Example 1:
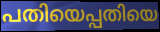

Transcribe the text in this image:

പതിയെപ്പതിയെ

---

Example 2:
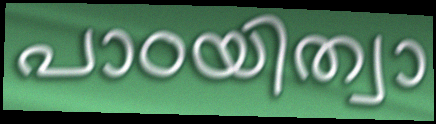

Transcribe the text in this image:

പാഠയിത്വാ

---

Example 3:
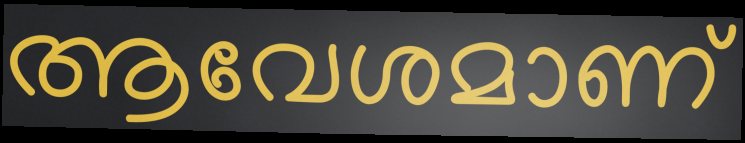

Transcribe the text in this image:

ആവേശമാണ്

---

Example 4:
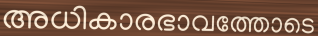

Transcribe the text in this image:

അധികാരഭാവത്തോടെ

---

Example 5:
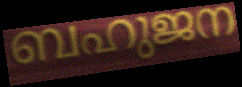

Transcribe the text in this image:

ബഹുജന